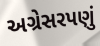
અગ્રેસરપણું